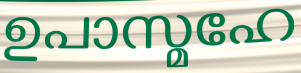
ഉപാസ്മഹേ